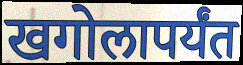
खगोलापर्यंत